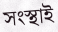
সংস্থাই